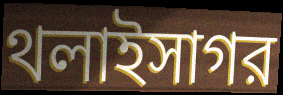
থলাইসাগর